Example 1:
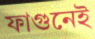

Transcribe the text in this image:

ফাগুনেই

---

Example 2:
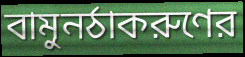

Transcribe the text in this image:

বামুনঠাকরুণের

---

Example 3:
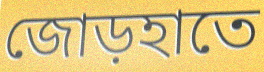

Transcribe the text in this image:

জোড়হাতে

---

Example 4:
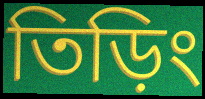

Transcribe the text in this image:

তিড়িং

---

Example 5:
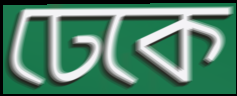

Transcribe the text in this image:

ঢেকে